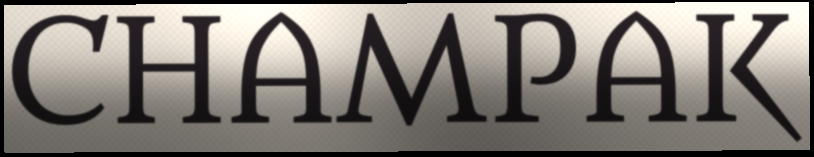
CHAMPAK